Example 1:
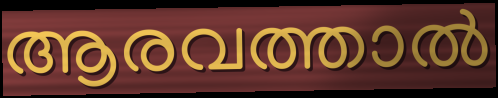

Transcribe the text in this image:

ആരവത്താൽ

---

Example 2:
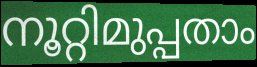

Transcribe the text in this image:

നൂറ്റിമുപ്പതാം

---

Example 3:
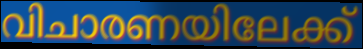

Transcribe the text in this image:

വിചാരണയിലേക്ക്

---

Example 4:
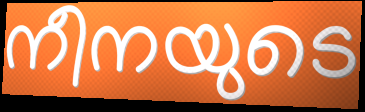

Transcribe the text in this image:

നീനയുടെ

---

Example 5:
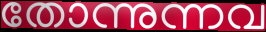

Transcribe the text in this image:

തോന്നുന്നവ